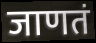
जाणतं